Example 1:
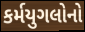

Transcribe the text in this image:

કર્મયુગલોનો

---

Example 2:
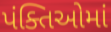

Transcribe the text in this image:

પંક્તિઓમાં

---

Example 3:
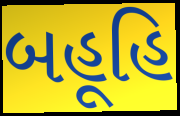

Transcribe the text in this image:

બહૂહિ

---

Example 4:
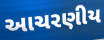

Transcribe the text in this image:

આચરણીય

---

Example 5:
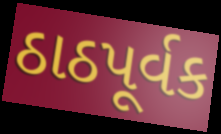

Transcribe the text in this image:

ઠાઠપૂર્વક